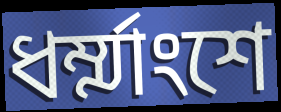
ধর্ম্মাংশে